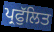
ਪ੍ਰਫੁੱਲਿਤ